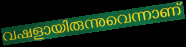
വഷളായിരുന്നുവെന്നാണ്